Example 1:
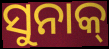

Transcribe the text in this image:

ସୁନାକ୍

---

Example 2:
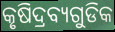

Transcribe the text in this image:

କୃଷିଦ୍ରବ୍ୟଗୁଡିକ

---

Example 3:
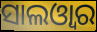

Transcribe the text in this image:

ସାଲଓ୍ଵାର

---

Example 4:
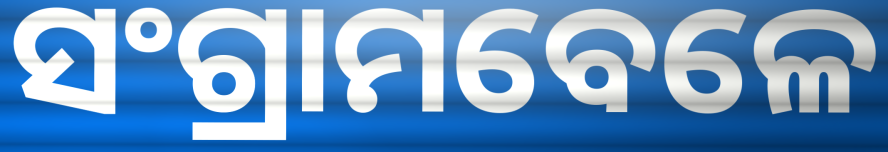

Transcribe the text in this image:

ସଂଗ୍ରାମବେଳେ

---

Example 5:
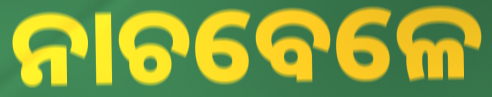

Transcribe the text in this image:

ନାଚବେଳେ